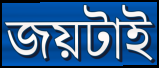
জয়টাই